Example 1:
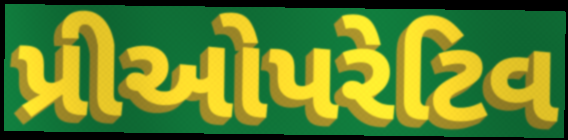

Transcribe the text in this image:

પ્રીઓપરેટિવ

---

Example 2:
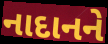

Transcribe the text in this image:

નાદાનને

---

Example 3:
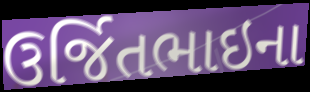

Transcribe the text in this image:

ઉર્જિતભાઇના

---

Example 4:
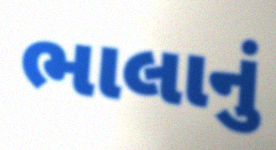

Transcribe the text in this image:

ભાલાનું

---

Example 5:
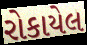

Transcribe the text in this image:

રોકાયેલ